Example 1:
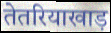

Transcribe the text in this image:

तेतरियाखाड़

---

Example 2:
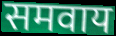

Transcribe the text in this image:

समवाय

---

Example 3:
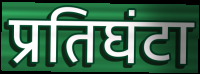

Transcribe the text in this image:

प्रतिघंटा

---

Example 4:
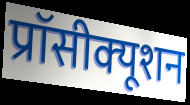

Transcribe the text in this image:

प्रॉसीक्यूशन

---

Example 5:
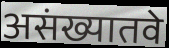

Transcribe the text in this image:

असंख्यातवे